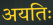
अयतिः